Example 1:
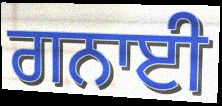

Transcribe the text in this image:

ਗਨਾਈ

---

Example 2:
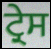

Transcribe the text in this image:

ਟ੍ਰੇਸ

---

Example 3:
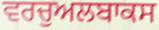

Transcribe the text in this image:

ਵਰਚੁਅਲਬਾਕਸ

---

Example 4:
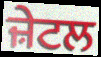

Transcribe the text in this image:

ਜ਼ੇਟਲ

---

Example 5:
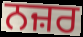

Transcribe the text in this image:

ਨਜ਼ਰ